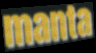
manta